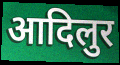
आदिलुर